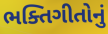
ભક્તિગીતોનું